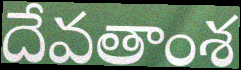
దేవతాంశ